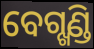
ବେଗ୍ଖଣ୍ଡି